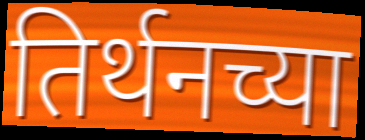
तिर्थनच्या